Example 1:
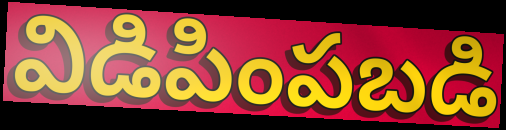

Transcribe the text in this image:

విడిపింపబడి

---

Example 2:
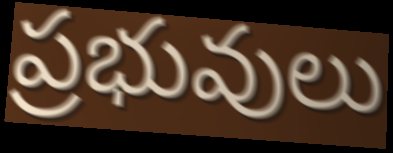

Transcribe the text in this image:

ప్రభువులు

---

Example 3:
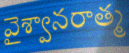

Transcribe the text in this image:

వైశ్వానరాత్మ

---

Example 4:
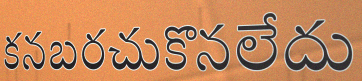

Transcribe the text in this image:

కనబరచుకొనలేదు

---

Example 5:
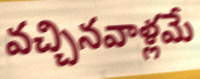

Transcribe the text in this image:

వచ్చినవాళ్లమే